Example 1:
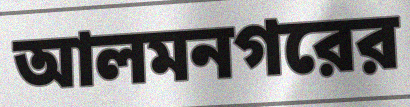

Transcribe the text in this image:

আলমনগরের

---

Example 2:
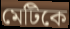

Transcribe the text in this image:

মেটিকে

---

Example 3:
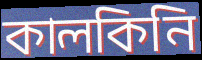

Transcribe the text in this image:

কালকিনি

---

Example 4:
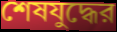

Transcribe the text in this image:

শেষযুদ্ধের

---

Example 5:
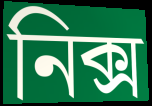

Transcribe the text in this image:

নিক্স